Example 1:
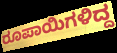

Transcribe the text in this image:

ರೂಪಾಯಿಗಳಿದ್ದ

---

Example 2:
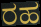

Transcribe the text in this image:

ರಹ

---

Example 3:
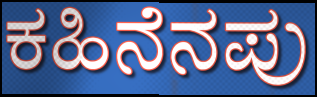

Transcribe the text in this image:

ಕಹಿನೆನಪು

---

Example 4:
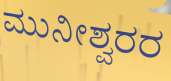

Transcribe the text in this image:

ಮುನೀಶ್ವರರ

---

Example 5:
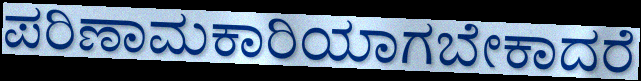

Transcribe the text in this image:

ಪರಿಣಾಮಕಾರಿಯಾಗಬೇಕಾದರೆ